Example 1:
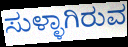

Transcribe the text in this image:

ಸುಳ್ಳಾಗಿರುವ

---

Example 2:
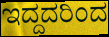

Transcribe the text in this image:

ಇದ್ದದರಿಂದ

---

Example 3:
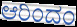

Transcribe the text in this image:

ಆರಿಂದಂ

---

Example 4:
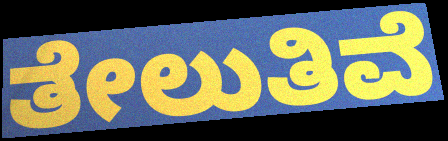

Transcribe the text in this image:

ತೇಲುತಿವೆ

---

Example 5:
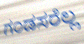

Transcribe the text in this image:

ಗಂಡಸರೆಲ್ಲ